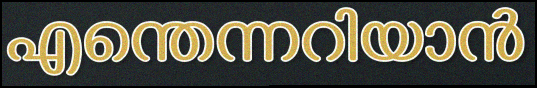
എന്തെന്നറിയാൻ